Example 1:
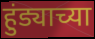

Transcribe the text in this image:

हुंड्याच्या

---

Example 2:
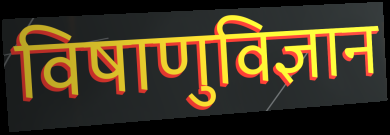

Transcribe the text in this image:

विषाणुविज्ञान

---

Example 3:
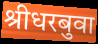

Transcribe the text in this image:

श्रीधरबुवा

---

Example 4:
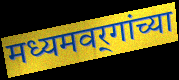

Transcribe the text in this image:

मध्यमवर्गांच्या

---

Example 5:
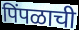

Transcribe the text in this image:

पिंपळाची